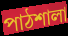
পাঠশালা